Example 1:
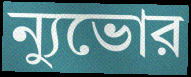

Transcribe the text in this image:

ন্যুভোর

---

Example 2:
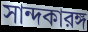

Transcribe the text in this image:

সান্দকারঙ্গ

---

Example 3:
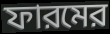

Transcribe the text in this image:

ফারমের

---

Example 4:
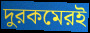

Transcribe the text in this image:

দুরকমেরই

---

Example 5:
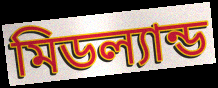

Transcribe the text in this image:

মিডল্যান্ড